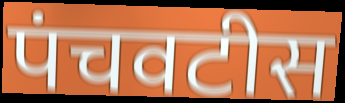
पंचवटीस